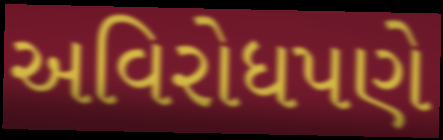
અવિરોધપણે